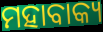
ମହାବାକ୍ୟ